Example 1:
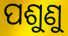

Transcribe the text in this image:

ପଶୁଣୁ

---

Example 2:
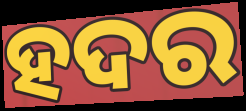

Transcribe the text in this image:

ହଦର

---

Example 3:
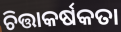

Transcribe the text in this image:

ଚିତ୍ତାକର୍ଷକତା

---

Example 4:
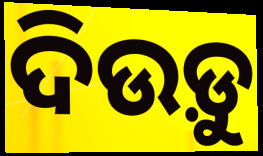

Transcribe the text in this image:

ଦିଉଡ଼ୁ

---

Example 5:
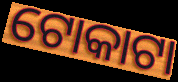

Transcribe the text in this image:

ଟୋକାଟା